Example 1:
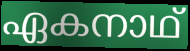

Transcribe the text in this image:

ഏകനാഥ്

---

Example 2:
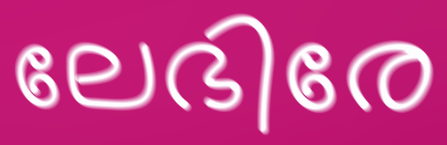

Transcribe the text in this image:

ലേഭിരേ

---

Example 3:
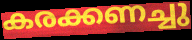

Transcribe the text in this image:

കരക്കണച്ചു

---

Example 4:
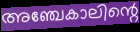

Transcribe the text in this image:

അഞ്ചേകാലിന്റെ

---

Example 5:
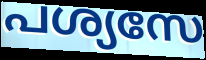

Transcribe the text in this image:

പശ്യസേ